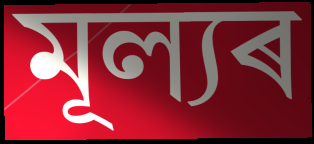
মূল্য়ৰ